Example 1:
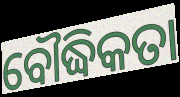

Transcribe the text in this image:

ବୌଦ୍ଧିକତା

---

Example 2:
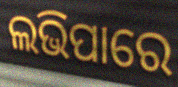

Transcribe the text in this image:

ଲଭିପାରେ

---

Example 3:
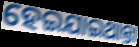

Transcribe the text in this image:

ହେଇଯାଇଥାନ୍ତା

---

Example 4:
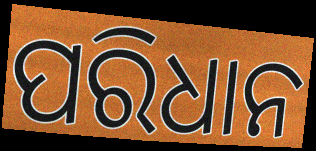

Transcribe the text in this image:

ପରିଧାନ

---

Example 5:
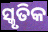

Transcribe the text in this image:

ସ୍କୃତିକ